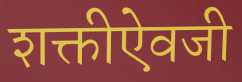
शक्तीऐवजी